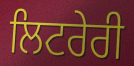
ਲਿਟਰੇਰੀ